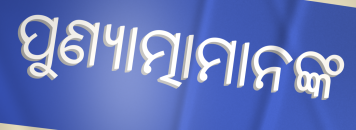
ପୁଣ୍ୟାତ୍ମାମାନଙ୍କ